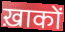
ख़ाकों